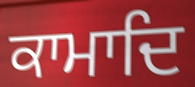
ਕਾਮਾਦਿ